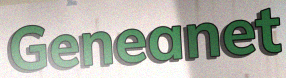
Geneanet